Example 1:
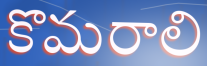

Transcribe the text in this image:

కొమరాలి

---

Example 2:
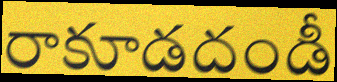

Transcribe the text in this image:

రాకూడదండీ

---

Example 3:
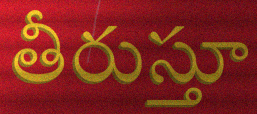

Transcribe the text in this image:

తీరుస్తూ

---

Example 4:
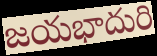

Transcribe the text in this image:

జయభాదురి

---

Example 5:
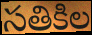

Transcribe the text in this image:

సతికిల